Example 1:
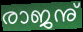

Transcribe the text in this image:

രാജനു്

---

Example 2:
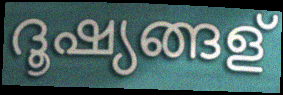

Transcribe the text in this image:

ദൂഷ്യങ്ങള്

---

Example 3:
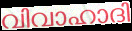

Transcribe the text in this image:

വിവാഹാദി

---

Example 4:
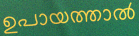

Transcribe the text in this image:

ഉപായത്താൽ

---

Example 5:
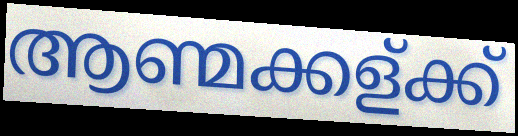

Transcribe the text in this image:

ആണ്മക്കള്ക്ക്